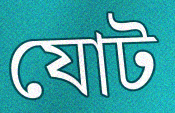
যোট